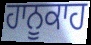
ਹਾਨੂਕਾਹ